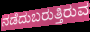
ನಡೆದುಬರುತ್ತಿರುವ